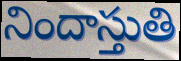
నిందాస్తుతి